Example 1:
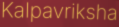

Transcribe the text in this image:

Kalpavriksha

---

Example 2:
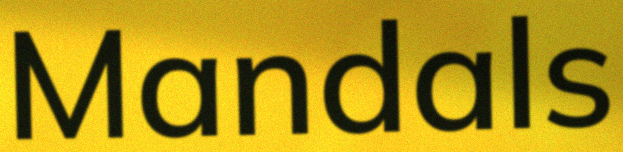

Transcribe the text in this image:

Mandals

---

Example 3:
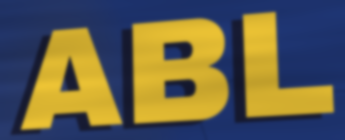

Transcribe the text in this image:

ABL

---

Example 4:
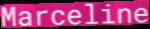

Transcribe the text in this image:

Marceline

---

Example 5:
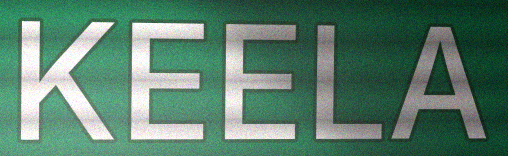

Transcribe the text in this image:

KEELA